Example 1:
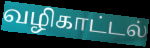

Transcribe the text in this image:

வழிகாட்டல்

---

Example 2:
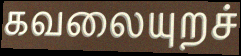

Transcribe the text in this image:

கவலையுறச்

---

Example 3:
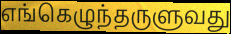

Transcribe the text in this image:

எங்கெழுந்தருளுவது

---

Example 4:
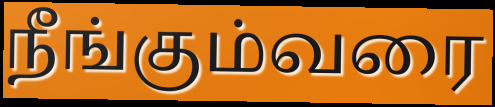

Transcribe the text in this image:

நீங்கும்வரை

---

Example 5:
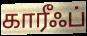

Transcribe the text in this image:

காரீஃப்